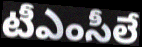
టీఎంసీలే